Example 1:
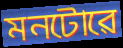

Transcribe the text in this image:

মনটোৱে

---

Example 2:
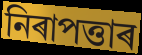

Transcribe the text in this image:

নিৰাপত্তাৰ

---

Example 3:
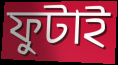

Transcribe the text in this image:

ফুটাই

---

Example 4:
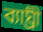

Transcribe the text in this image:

ব্যাঘ্ৰী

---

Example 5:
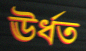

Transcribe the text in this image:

ঊৰ্ধত